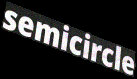
semicircle